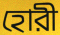
হোরী